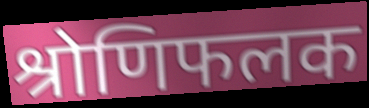
श्रोणिफलक